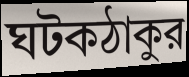
ঘটকঠাকুর